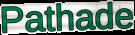
Pathade